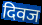
दिवज